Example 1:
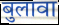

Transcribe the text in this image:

बुलावा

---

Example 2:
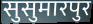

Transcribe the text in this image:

सुसुमारपुर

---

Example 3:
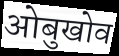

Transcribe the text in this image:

ओबुखोव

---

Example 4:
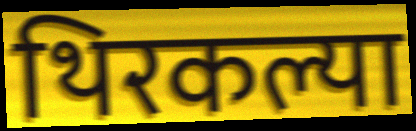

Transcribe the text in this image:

थिरकल्या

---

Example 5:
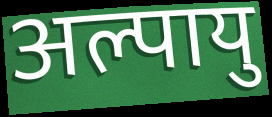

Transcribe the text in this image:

अल्पायु